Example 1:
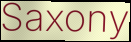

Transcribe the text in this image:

Saxony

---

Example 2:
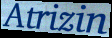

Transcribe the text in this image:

Atrizin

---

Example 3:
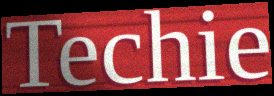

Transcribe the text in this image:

Techie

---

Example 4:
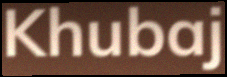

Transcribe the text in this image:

Khubaj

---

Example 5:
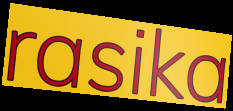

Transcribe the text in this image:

rasika